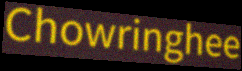
Chowringhee